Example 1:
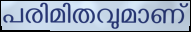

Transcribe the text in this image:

പരിമിതവുമാണ്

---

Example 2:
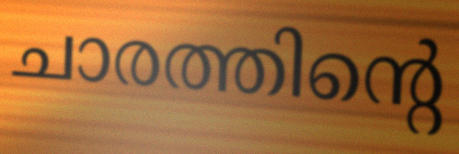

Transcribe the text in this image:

ചാരത്തിന്റെ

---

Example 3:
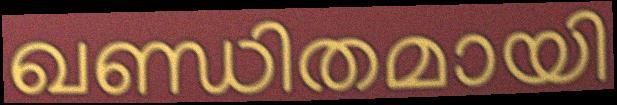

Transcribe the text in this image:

ഖണ്ഡിതമായി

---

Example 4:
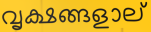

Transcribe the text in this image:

വൃക്ഷങ്ങളാല്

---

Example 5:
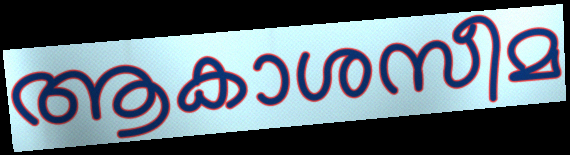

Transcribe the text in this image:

ആകാശസീമ